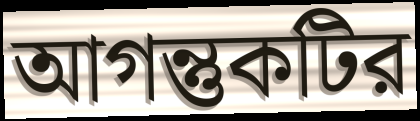
আগন্তুকটির